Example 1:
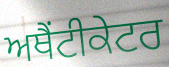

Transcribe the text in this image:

ਅਥੈਂਟੀਕੇਟਰ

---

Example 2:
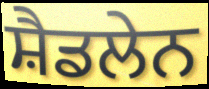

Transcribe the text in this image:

ਸ਼ੈਡਲੇਨ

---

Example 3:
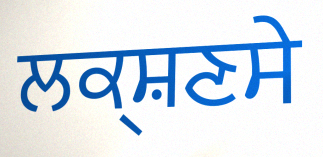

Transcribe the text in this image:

ਲਕ੍ਸ਼ਣਸੇ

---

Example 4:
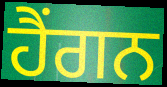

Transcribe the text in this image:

ਹੈਂਗਨ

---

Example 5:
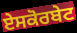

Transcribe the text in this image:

ਏਸਕੋਰਬੇਟ